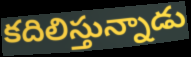
కదిలిస్తున్నాడు